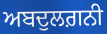
ਅਬਦੁਲਗ਼ਨੀ